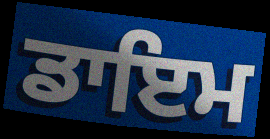
ਡਾਇਮ